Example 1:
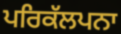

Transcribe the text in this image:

ਪਰਿਕੱਲਪਨਾ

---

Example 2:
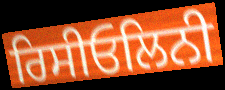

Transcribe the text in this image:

ਰਿਸੀਓਲਿਨੀ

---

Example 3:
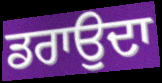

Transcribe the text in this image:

ਡਰਾਉਦਾ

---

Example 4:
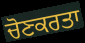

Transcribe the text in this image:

ਚੋਣਕਰਤਾ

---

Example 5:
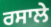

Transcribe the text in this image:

ਰਸਾਲੇ